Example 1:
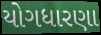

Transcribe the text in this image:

યોગધારણા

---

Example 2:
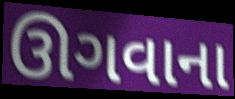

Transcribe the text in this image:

ઊગવાના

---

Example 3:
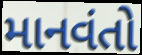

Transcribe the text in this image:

માનવંતો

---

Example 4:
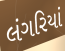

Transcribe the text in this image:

લંગરિયાં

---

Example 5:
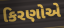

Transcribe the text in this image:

કિરણોએ